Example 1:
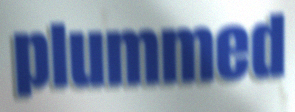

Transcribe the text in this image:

plummed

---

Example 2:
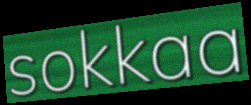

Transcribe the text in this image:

sokkaa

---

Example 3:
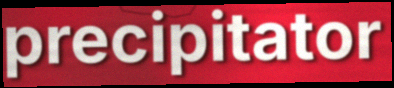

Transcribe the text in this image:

precipitator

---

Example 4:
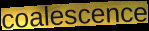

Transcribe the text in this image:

coalescence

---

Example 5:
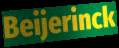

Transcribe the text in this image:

Beijerinck